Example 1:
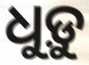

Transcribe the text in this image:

ଧୁଡ଼ୁ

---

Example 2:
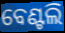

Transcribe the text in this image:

ବେଣ୍ଟଲି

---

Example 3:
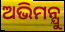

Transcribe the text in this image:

ଅଭିମନ୍ଯୁ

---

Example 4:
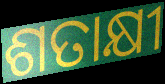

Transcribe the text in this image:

ଶତାକ୍ଷୀ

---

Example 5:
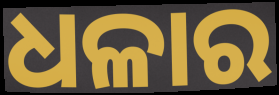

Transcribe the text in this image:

ଧଳାର